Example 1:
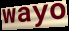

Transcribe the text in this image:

wayo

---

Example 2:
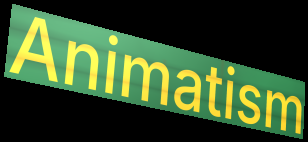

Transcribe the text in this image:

Animatism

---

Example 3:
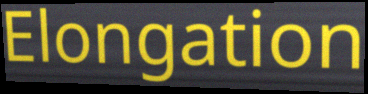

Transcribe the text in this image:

Elongation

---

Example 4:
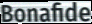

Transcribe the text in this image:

Bonafide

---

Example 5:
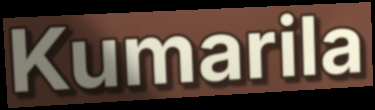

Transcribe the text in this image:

Kumarila